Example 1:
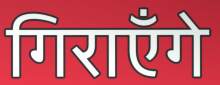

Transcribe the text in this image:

गिराएँगे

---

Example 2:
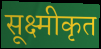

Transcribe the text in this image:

सूक्ष्मीकृत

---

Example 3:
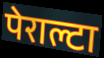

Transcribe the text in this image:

पेराल्टा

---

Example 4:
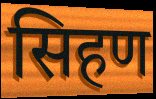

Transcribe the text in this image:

सिहण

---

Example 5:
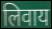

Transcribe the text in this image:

लिवाय